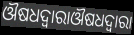
ଔଷଧଦ୍ଵାରାଔଷଧଦ୍ବାରା